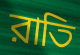
রাতি